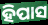
ହିପାସ